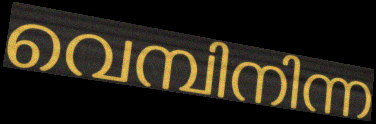
വെമ്പിനിന്ന